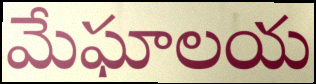
మేఘాలయ